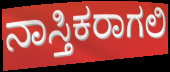
ನಾಸ್ತಿಕರಾಗಲಿ